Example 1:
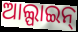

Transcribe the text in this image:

ଆଲ୍ପାଇନ୍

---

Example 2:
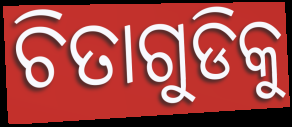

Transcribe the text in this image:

ଚିତାଗୁଡିକୁ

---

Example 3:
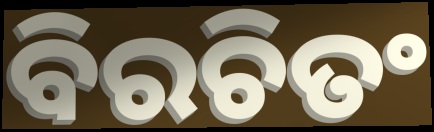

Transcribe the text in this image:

ବିରଚିତଂ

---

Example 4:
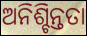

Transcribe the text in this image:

ଅନିଶ୍ଚିନ୍ତତା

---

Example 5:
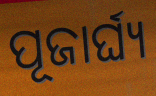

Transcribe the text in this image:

ପୂଜାର୍ଘ୍ୟ